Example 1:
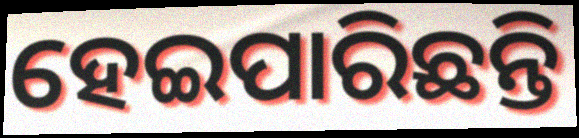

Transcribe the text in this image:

ହେଇପାରିଛନ୍ତି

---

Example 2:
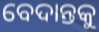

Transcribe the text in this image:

ବେଦାନ୍ତକୁ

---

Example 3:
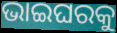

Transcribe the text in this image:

ଭାଇଘରକୁ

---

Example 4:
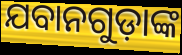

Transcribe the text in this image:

ଯବାନଗୁଡ଼ାଙ୍କ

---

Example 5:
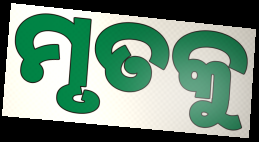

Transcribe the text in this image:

ମୃତକୁ